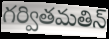
గర్వితమతిన్